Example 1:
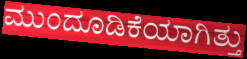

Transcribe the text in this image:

ಮುಂದೂಡಿಕೆಯಾಗಿತ್ತು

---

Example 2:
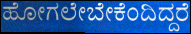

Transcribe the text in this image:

ಹೋಗಲೇಬೇಕೆಂದಿದ್ದರೆ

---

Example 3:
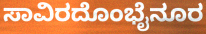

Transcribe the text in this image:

ಸಾವಿರದೊಂಭೈನೂರ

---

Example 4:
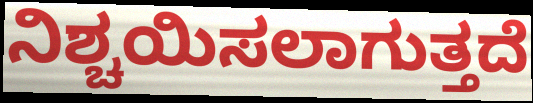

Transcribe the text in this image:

ನಿಶ್ಚಯಿಸಲಾಗುತ್ತದೆ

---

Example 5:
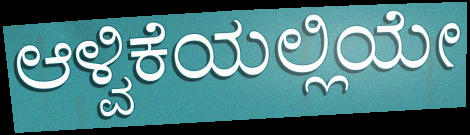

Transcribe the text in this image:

ಆಳ್ವಿಕೆಯಲ್ಲಿಯೇ